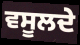
ਵਸੂਲਦੇ